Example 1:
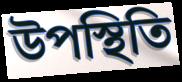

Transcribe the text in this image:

উপস্থিতি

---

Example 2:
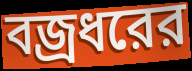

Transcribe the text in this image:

বজ্রধরের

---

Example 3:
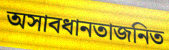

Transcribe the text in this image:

অসাবধানতাজনিত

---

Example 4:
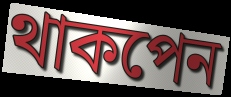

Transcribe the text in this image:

থাকপেন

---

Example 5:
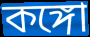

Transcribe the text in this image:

কঙ্গো